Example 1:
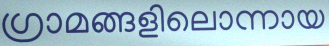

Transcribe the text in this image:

ഗ്രാമങ്ങളിലൊന്നായ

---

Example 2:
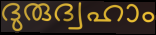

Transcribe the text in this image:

ദുരുദ്വഹാം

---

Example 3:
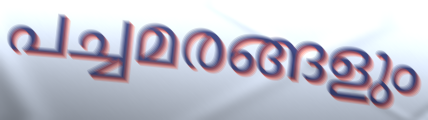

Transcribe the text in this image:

പച്ചമരങ്ങളും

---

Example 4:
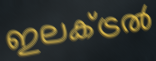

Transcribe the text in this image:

ഇലക്ട്രൽ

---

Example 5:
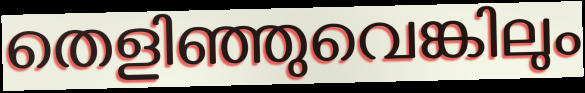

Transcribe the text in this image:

തെളിഞ്ഞുവെങ്കിലും